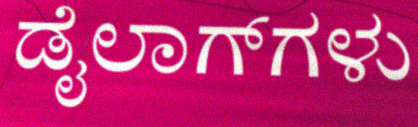
ಡೈಲಾಗ್‌ಗಳು